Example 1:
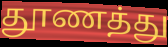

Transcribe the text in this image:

தூணத்து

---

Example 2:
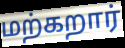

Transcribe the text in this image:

மற்கறார்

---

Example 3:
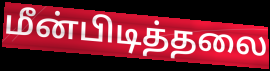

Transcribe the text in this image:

மீன்பிடித்தலை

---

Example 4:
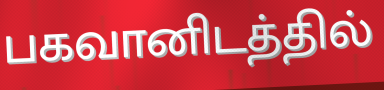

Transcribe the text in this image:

பகவானிடத்தில்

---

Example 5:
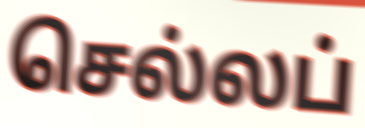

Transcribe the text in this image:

செல்லப்